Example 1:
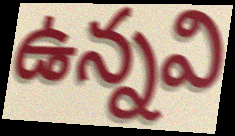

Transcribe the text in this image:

ఉన్నవి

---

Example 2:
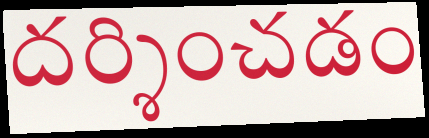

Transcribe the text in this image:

దర్శించడం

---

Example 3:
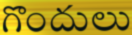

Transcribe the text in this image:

గొందులు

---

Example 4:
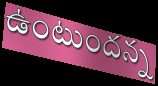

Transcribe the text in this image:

ఉంటుందన్న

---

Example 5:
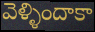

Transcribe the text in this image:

వెళ్ళిందాకా